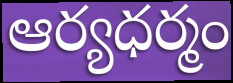
ఆర్యధర్మం